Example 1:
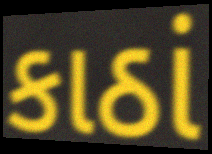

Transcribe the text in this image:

કાઠાં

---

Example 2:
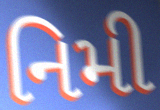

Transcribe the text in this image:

નિમી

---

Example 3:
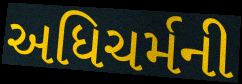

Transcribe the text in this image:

અધિચર્મની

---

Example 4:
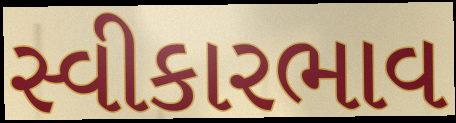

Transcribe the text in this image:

સ્વીકારભાવ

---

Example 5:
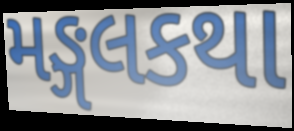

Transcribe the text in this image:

મઙ્ગલકથા